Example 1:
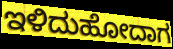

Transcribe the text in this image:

ಇಳಿದುಹೋದಾಗ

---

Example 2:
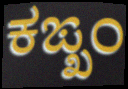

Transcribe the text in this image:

ಕಙ್ಖಂ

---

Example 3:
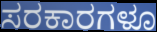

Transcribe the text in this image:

ಸರಕಾರಗಳೂ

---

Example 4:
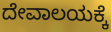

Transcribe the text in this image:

ದೇವಾಲಯಕ್ಕೆ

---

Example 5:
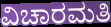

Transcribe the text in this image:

ವಿಚಾರಮತಿ